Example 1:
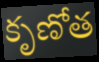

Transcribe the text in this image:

కృణోత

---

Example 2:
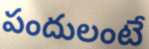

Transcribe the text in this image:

పందులంటే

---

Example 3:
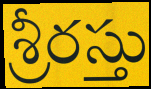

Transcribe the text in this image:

శ్రీరస్తు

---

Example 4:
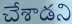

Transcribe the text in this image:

చేశాడని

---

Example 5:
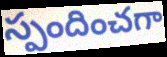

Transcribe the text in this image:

స్పందించగా